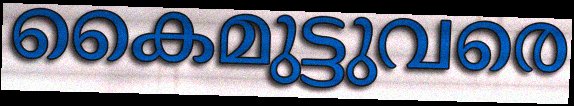
കൈമുട്ടുവരെ